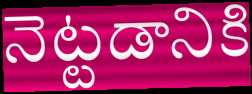
నెట్టడానికి